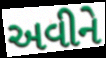
અવીને